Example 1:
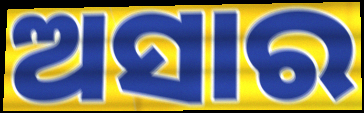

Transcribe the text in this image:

ଅସାର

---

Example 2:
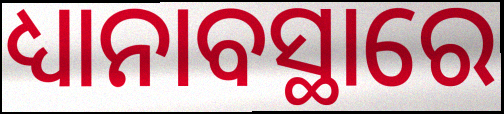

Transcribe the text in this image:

ଧ୍ୟାନାବସ୍ଥାରେ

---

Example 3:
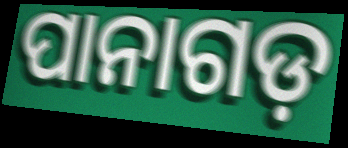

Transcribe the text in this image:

ପାନାଗଡ଼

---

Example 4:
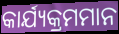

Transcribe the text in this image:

କାର୍ଯ୍ୟକ୍ରମମାନ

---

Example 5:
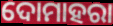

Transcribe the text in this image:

ଦୋମାହରା